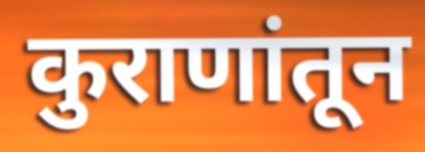
कुराणांतून